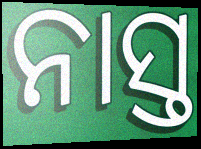
ନାସ୍ତ